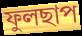
ফুলছাপ